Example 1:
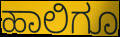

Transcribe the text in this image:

ಹಾಲಿಗೂ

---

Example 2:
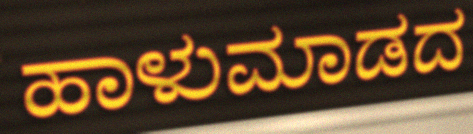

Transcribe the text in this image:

ಹಾಳುಮಾಡದ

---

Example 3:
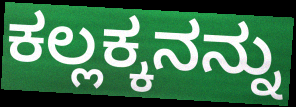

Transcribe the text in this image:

ಕಲ್ಲಕ್ಕನನ್ನು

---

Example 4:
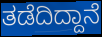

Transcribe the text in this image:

ತಡೆದಿದ್ದಾನೆ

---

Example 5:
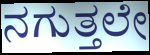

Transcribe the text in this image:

ನಗುತ್ತಲೇ